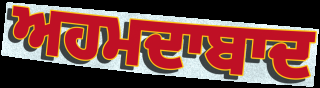
ਅਹਮਦਾਬਾਦ